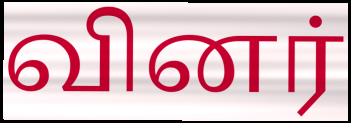
வினர்